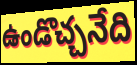
ఉండొచ్చనేది